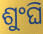
ଶୁଂଘି